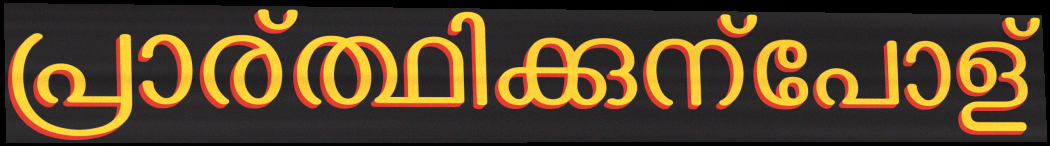
പ്രാര്ത്ഥിക്കുന്പോള്